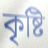
কৃষ্টি